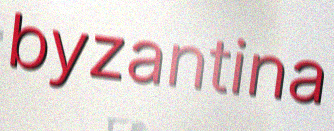
byzantina